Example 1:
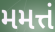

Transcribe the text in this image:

મમત્તં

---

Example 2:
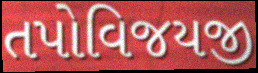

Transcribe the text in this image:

તપોવિજયજી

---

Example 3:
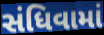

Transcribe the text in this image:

સંધિવામાં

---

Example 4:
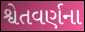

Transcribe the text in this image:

શ્વેતવર્ણના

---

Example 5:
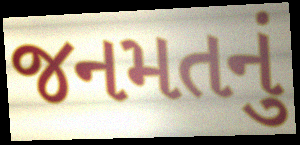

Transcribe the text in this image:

જનમતનું